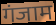
गंजाम